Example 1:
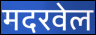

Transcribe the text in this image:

मदरवेल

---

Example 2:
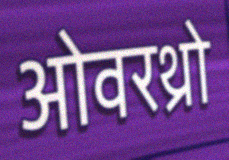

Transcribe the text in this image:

ओवरथ्रो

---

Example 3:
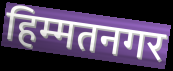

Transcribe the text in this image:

हिम्मतनगर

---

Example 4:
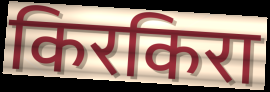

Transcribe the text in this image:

किरकिरा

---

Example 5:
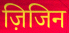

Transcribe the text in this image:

ज़िजिन